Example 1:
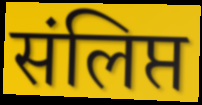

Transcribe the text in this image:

संलिप्त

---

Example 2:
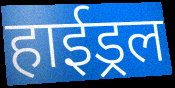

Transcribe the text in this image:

हाईड्रल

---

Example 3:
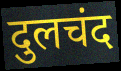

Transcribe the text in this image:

दुलचंद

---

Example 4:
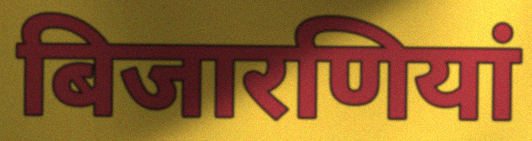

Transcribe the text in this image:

बिजारणियां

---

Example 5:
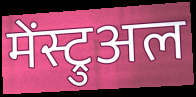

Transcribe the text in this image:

मेंस्ट्रुअल